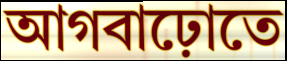
আগবাঢ়োতে